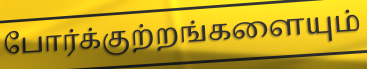
போர்க்குற்றங்களையும்